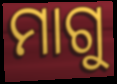
ମାଗୁ